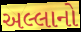
અલ્લાનો